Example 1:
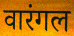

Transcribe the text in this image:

वारंगल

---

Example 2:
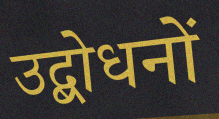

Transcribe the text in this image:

उद्बोधनों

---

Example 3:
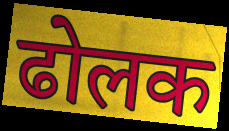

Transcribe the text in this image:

ढोलक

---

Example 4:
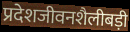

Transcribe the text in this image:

प्रदेशजीवनशैलीबड़ी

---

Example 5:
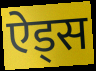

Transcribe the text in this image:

ऐड्स